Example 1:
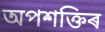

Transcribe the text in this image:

অপশক্তিৰ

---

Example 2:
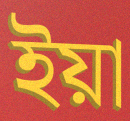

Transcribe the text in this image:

ইয়া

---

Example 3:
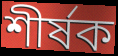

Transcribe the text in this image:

শীৰ্ষক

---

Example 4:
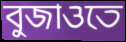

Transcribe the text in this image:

বুজাওতে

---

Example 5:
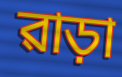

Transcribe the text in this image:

ৱাড়া